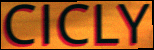
CICLY